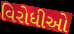
વિરોધીઓ